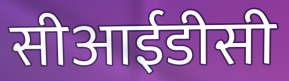
सीआईडीसी